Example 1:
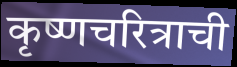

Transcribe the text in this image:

कृष्णचरित्राची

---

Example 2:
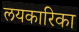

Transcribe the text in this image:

लयकारिका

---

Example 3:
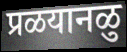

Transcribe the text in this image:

प्रळयानळु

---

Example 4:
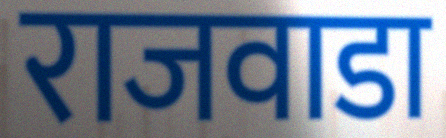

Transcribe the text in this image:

राजवाडा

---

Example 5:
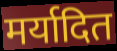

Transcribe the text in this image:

मर्यादित